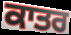
ਕਾਤਰ